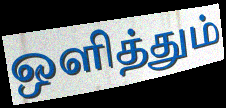
ஒளித்தும்